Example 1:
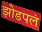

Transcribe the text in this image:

झोडपलं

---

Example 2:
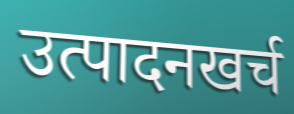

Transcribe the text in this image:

उत्पादनखर्च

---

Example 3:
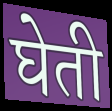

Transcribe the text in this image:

घेती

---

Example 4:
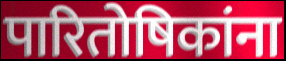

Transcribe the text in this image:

पारितोषिकांना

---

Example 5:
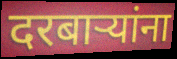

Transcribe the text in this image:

दरबाऱ्यांना